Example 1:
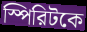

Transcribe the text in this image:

স্পিরিটকে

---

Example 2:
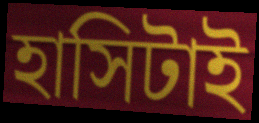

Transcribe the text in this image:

হাসিটাই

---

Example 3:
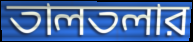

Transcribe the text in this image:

তালতলার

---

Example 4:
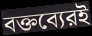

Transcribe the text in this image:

বক্তব্যেরই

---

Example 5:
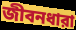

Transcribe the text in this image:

জীবনধারা